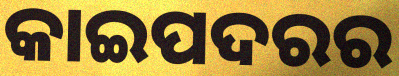
କାଇପଦରର